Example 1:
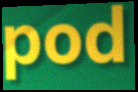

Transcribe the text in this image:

pod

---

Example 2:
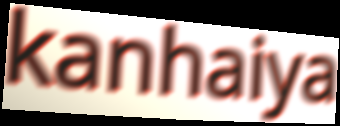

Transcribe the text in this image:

kanhaiya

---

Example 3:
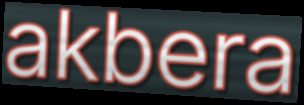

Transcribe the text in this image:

akbera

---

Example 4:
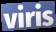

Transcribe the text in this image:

viris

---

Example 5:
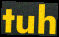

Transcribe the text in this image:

tuh